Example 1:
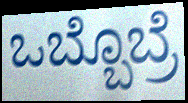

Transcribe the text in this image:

ಒಬ್ಬೊಬ್ರೆ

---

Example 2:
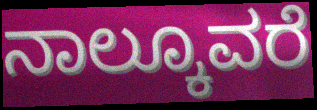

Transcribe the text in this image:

ನಾಲ್ಕೂವರೆ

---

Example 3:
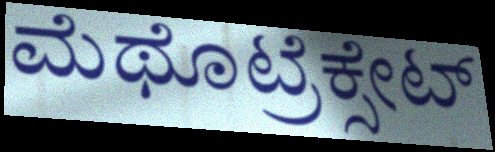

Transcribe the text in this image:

ಮೆಥೊಟ್ರೆಕ್ಸೇಟ್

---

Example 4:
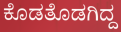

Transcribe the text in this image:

ಕೊಡತೊಡಗಿದ್ದ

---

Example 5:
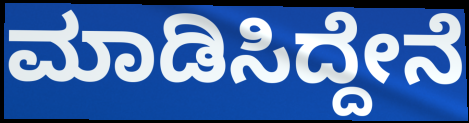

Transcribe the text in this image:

ಮಾಡಿಸಿದ್ದೇನೆ